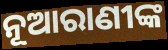
ନୂଆରାଣୀଙ୍କ